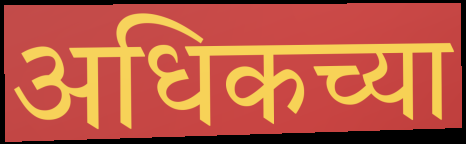
अधिकच्या